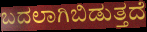
ಬದಲಾಗಿಬಿಡುತ್ತದೆ